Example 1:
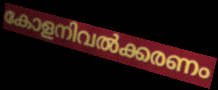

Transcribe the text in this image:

കോളനിവൽക്കരണം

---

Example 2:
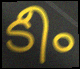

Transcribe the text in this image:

ടീം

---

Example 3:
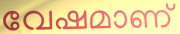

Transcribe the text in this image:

വേഷമാണ്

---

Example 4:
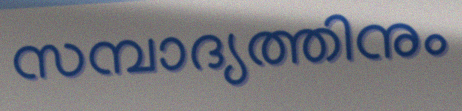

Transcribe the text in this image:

സമ്പാദ്യത്തിനും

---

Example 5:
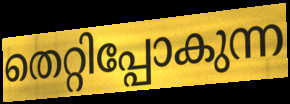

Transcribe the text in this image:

തെറ്റിപ്പോകുന്ന